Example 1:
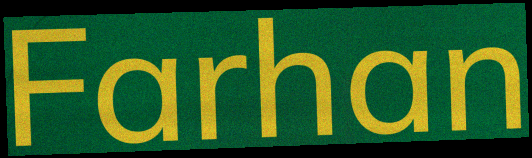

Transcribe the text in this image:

Farhan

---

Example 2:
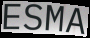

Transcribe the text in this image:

ESMA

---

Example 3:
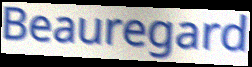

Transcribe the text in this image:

Beauregard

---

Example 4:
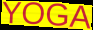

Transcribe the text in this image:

YOGA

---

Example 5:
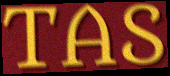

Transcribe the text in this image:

TAS